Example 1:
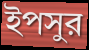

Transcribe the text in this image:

ইপসুর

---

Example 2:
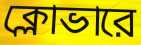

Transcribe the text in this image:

ক্লোভারে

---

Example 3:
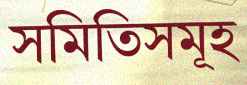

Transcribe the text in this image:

সমিতিসমূহ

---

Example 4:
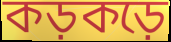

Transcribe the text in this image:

কড়কড়ে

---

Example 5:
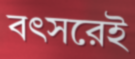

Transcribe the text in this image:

বৎসরেই